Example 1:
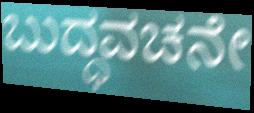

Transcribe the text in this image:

ಬುದ್ಧವಚನೇ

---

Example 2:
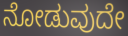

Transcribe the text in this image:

ನೋಡುವುದೇ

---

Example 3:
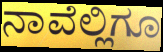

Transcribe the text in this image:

ನಾವೆಲ್ಲಿಗೂ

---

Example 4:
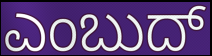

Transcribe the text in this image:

ಎಂಬುದ್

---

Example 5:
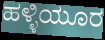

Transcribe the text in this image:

ಹಳ್ಳಿಯೂರ